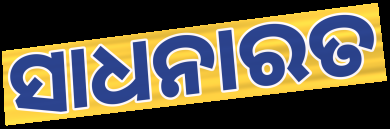
ସାଧନାରତ